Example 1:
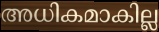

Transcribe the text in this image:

അധികമാകില്ല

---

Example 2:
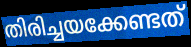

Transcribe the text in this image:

തിരിച്ചയക്കേണ്ടത്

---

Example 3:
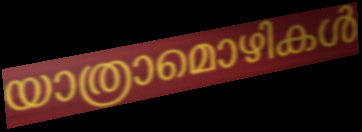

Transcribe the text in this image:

യാത്രാമൊഴികൾ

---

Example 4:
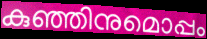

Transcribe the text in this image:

കുഞ്ഞിനുമൊപ്പം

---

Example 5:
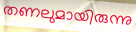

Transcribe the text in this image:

തണലുമായിരുന്നു